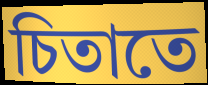
চিতাতে